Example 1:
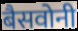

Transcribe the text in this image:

बैसवोनी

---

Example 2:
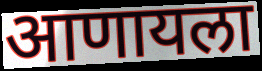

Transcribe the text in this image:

आणायला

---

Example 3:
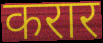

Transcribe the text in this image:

करार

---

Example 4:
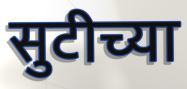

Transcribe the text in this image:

सुटीच्या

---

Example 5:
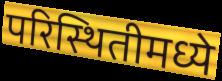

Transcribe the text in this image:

परिस्थितीमध्ये